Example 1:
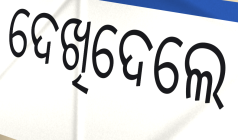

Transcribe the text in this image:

ଦେଖିଦେଲେ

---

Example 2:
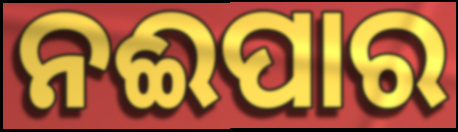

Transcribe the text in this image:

ନଈପାର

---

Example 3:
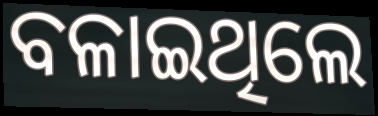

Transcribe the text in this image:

ବଳାଇଥିଲେ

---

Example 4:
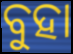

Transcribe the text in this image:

ବୁହା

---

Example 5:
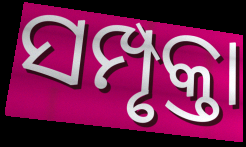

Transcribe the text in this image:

ସମ୍ପୃକ୍ତା